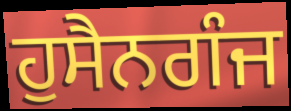
ਹੁਸੈਨਗੰਜ